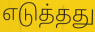
எடுத்தது